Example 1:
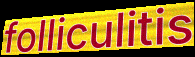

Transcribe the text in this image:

folliculitis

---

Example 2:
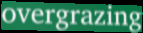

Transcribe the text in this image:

overgrazing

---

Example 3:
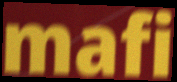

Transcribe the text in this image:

mafi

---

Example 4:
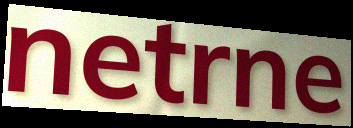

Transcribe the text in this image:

netrne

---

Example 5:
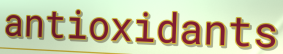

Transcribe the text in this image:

antioxidants